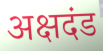
अक्षदंड